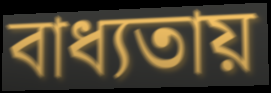
বাধ্যতায়